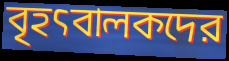
বৃহৎবালকদের